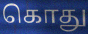
கொது